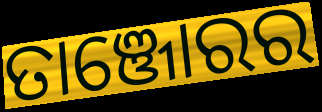
ତାଞ୍ଜୋରର